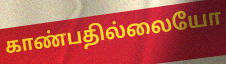
காண்பதில்லையோ